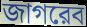
জাগরেব